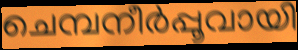
ചെമ്പനീർപ്പൂവായി